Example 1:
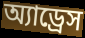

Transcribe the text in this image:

অ্যাড্রেস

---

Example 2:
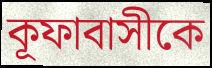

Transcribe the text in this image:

কূফাবাসীকে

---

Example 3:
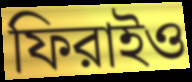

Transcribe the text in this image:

ফিরাইও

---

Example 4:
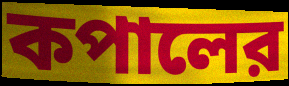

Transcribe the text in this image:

কপালের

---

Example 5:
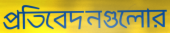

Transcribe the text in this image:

প্রতিবেদনগুলোর